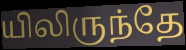
யிலிருந்தே